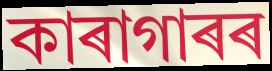
কাৰাগাৰৰ